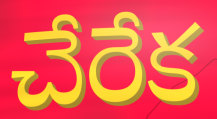
చేరేక